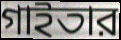
গাইতার